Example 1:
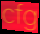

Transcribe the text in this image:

cfg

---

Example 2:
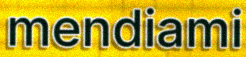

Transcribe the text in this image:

mendiami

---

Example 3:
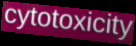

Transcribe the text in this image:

cytotoxicity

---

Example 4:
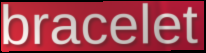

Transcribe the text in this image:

bracelet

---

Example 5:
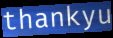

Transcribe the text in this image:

thankyu